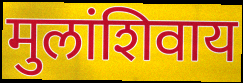
मुलांशिवाय